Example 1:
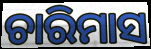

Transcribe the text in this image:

ଚାରିମାସ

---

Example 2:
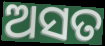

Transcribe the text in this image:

ଅସତ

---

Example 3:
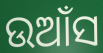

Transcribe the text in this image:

ଉଆଁସ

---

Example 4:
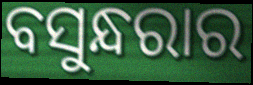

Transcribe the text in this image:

ବସୁନ୍ଧରାର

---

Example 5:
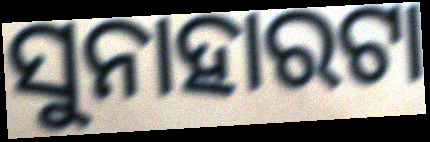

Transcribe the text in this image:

ସୁନାହାରଟା